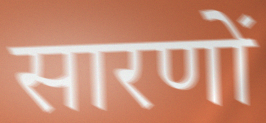
सारणों